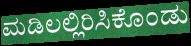
ಮಡಿಲಲ್ಲಿರಿಸಿಕೊಂಡು